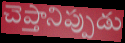
చెప్తానిప్పుడు